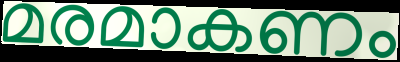
മരമാകണം